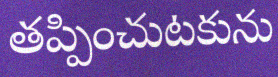
తప్పించుటకును